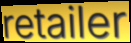
retailer